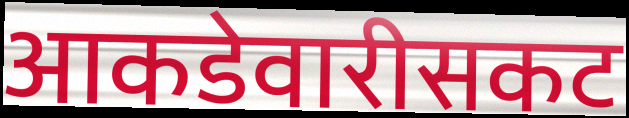
आकडेवारीसकट